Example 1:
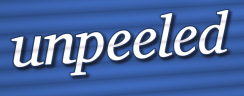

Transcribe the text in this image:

unpeeled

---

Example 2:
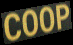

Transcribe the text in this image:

COOP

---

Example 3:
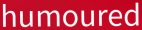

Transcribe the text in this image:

humoured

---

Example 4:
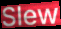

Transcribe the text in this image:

Slew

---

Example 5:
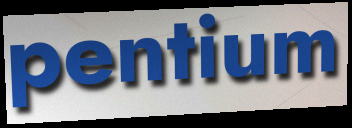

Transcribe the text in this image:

pentium